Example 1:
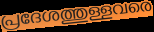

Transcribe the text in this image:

പ്രദേശത്തുള്ളവരെ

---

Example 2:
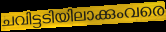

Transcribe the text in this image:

ചവിട്ടടിയിലാക്കുംവരെ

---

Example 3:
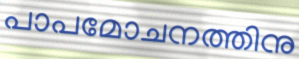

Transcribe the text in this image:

പാപമോചനത്തിനു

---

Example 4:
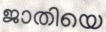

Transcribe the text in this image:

ജാതിയെ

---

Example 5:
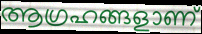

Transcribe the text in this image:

ആഗ്രഹങ്ങളാണ്